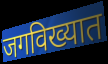
जगविख्यात